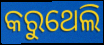
କରୁଥେଲି